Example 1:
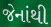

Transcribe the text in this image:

જેનાંથી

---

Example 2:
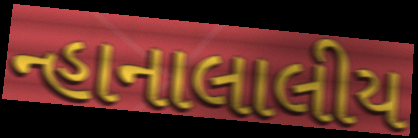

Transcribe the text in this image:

ન્હાનાલાલીય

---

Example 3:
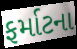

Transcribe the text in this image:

ફર્માટના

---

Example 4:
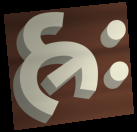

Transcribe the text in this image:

હ્રઃ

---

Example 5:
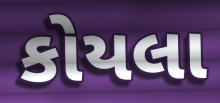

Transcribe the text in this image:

કોયલા